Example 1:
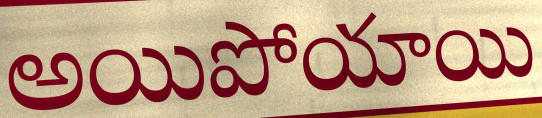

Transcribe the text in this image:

అయిపోయాయి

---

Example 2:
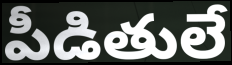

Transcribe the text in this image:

పీడితులే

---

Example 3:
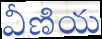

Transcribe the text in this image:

వీణియ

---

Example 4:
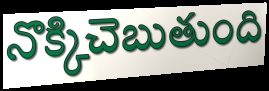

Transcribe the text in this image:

నొక్కిచెబుతుంది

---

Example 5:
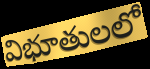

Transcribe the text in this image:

విభూతులలో